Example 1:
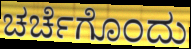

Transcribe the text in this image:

ಚರ್ಚೆಗೊಂದು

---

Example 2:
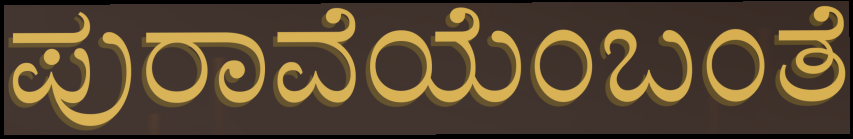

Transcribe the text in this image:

ಪುರಾವೆಯೆಂಬಂತೆ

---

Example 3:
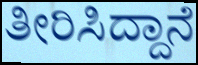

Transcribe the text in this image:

ತೀರಿಸಿದ್ದಾನೆ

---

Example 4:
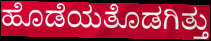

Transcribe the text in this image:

ಹೊಡೆಯತೊಡಗಿತ್ತು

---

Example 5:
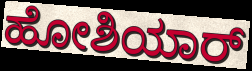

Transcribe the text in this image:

ಹೋಶಿಯಾರ್